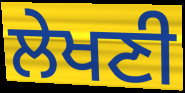
ਲੇਖਣੀ